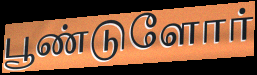
பூண்டுளோர்